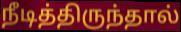
நீடித்திருந்தால்